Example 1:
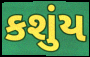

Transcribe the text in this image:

કશુંય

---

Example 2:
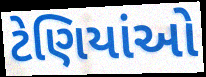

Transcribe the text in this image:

ટેણિયાંઓ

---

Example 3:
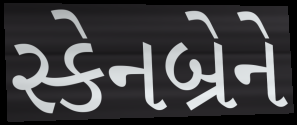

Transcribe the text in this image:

સ્કેનબ્રેને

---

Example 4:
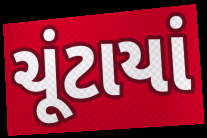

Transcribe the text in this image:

ચૂંટાયાં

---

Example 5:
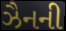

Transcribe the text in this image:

ઝૈનની